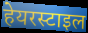
हेयरस्टाइल